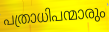
പത്രാധിപന്മാരും